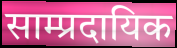
साम्प्रदायिक